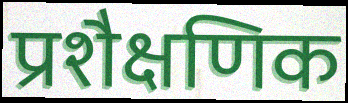
प्रशैक्षणिक